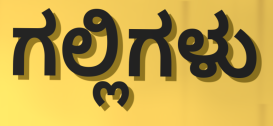
ಗಲ್ಲಿಗಳು